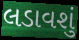
લડાવશું